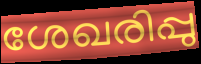
ശേഖരിപ്പു